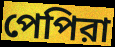
পেপিরা